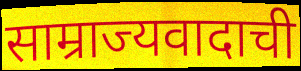
साम्राज्यवादाची